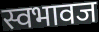
स्वभावज